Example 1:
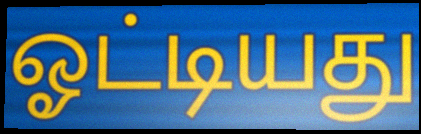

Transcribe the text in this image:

ஓட்டியது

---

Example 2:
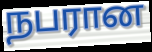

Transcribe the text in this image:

நபரான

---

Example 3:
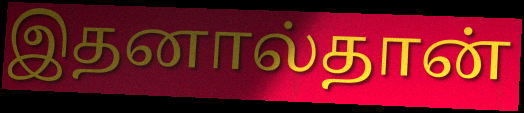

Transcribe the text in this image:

இதனால்தான்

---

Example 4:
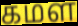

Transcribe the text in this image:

கமள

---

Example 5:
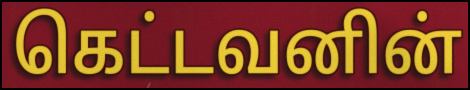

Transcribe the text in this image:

கெட்டவனின்